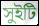
সুইটি